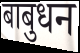
बाबुधन